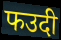
फउदी